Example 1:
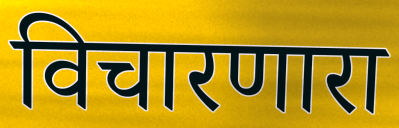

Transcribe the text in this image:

विचारणारा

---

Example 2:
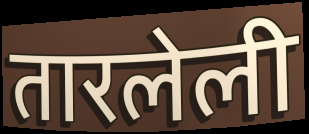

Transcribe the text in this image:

तारलेली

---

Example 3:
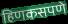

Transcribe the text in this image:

हिणकसपणे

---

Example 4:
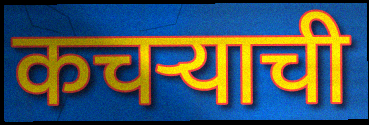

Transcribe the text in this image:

कचर्‍याची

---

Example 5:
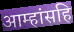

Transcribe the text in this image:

आम्हांसहि